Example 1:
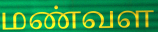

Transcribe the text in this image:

மண்வள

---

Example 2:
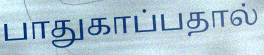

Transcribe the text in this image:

பாதுகாப்பதால்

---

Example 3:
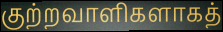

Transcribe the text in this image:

குற்றவாளிகளாகத்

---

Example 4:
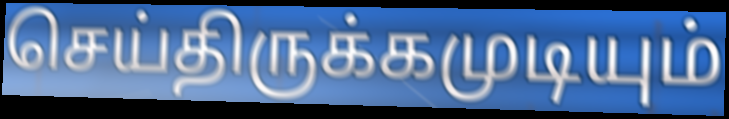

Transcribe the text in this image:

செய்திருக்கமுடியும்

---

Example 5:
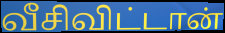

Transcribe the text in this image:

வீசிவிட்டான்